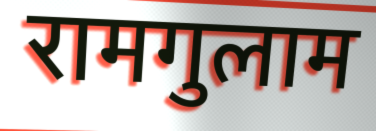
रामगुलाम